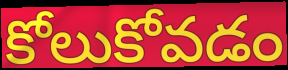
కోలుకోవడం